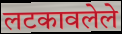
लटकावलेले